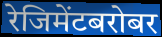
रेजिमेंटबरोबर